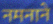
नमनाने